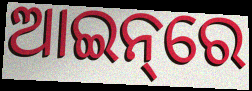
ଆଇନ୍‌ରେ